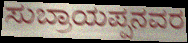
ಸುಬ್ರಾಯಪ್ಪನವರ